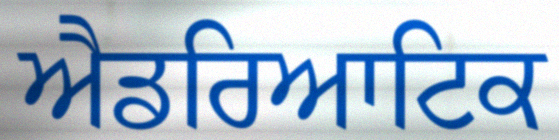
ਐਡਰਿਆਟਿਕ